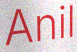
Anil